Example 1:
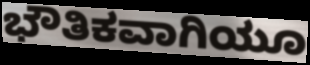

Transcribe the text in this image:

ಭೌತಿಕವಾಗಿಯೂ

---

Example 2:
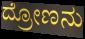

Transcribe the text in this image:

ದ್ರೋಣನು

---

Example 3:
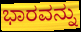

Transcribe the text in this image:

ಭಾರವನ್ನು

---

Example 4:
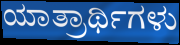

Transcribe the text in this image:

ಯಾತ್ರಾರ್ಥಿಗಳು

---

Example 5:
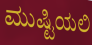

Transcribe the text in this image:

ಮುಷ್ಟಿಯಲಿ